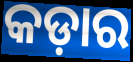
କଡ଼ାର